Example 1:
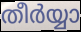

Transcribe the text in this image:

തീർയ്യാ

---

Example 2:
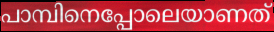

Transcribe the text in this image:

പാമ്പിനെപ്പോലെയാണത്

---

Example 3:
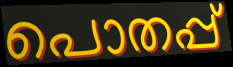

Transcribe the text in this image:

പൊതപ്പ്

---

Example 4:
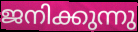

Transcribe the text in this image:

ജനിക്കുന്നു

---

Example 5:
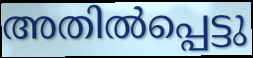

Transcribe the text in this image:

അതിൽപ്പെട്ടു